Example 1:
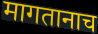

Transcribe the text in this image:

मागतानाच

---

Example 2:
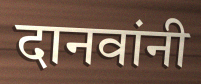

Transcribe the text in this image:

दानवांनी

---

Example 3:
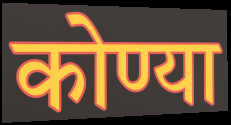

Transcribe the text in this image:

कोण्या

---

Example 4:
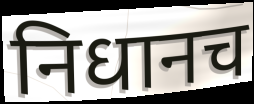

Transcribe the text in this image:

निधानच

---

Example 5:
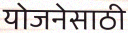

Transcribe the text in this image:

योजनेसाठी